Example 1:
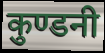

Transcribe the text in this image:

कुण्डनी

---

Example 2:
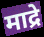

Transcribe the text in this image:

माद्रे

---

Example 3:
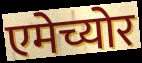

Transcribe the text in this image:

एमेच्योर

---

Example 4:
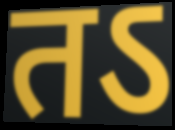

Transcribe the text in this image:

तऽ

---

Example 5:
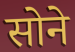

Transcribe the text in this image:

सोने